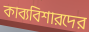
কাব্যবিশারদের